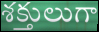
శక్తులుగా